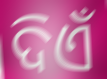
ଦିଏଁ